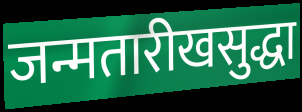
जन्मतारीखसुद्धा